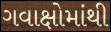
ગવાક્ષોમાંથી